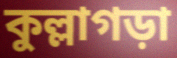
কুল্লাগড়া